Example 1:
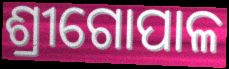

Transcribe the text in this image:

ଶ୍ରୀଗୋପାଳ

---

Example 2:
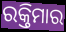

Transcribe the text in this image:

ରକ୍ତିମାର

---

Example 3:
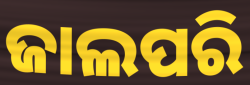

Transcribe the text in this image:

ଜାଲପରି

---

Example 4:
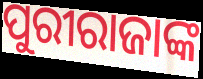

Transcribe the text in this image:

ପୁରୀରାଜାଙ୍କ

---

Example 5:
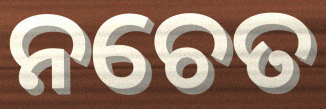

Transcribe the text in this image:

ନଚେତ